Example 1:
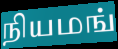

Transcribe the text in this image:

நியமங்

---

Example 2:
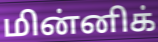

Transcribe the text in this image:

மின்னிக்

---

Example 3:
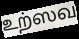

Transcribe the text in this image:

உற்ஸவ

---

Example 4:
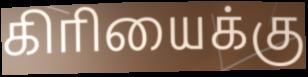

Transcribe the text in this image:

கிரியைக்கு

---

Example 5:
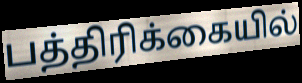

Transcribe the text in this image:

பத்திரிக்கையில்